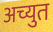
अच्‍युत